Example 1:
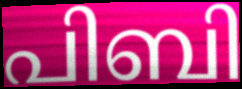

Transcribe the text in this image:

പിബി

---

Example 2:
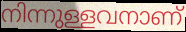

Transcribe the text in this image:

നിന്നുള്ളവനാണ്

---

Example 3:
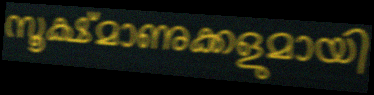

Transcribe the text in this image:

സൂക്ഷ്മാണുക്കളുമായി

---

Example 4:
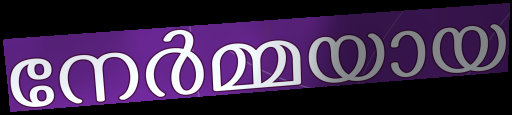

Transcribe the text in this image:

നേർമ്മയായ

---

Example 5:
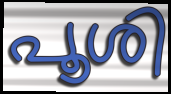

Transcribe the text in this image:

പൂശി